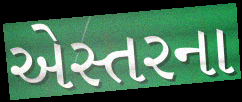
એસ્તરના